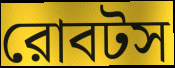
রোবটস